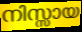
നിസ്സായ